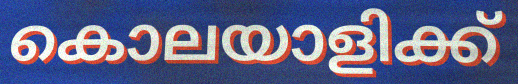
കൊലയാളിക്ക്